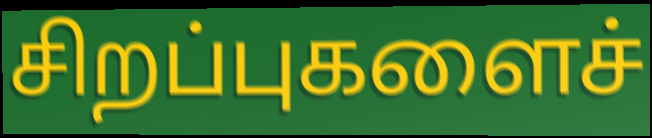
சிறப்புகளைச்